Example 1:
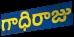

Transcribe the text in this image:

గాధిరాజు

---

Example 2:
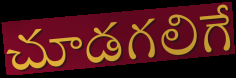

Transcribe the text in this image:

చూడగలిగే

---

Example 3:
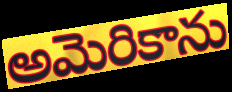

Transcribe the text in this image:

అమెరికాను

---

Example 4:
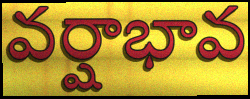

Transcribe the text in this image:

వర్షాభావ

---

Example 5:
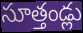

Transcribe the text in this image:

సూత్తండ్లు